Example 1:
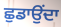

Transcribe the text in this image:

ਛੁਡਾਉਂਦਾ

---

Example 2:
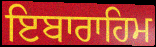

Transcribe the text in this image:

ਇਬਾਰਾਹਿਮ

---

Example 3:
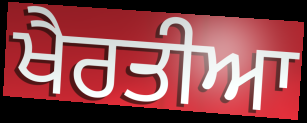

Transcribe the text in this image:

ਖੈਰਤੀਆ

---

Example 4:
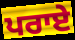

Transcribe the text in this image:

ਪਰਾਏ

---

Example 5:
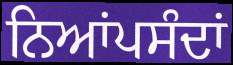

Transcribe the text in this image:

ਨਿਆਂਪਸੰਦਾਂ